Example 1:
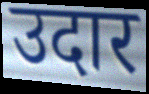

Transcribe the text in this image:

उदार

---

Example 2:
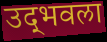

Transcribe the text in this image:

उद्‌भवला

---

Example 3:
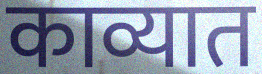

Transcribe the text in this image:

काव्यात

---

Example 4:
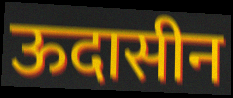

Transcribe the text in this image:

ऊदासीन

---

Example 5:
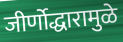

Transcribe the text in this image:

जीर्णोद्धारामुळे